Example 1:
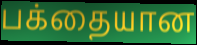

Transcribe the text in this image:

பக்தையான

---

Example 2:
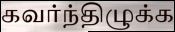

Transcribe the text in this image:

கவர்ந்திழுக்க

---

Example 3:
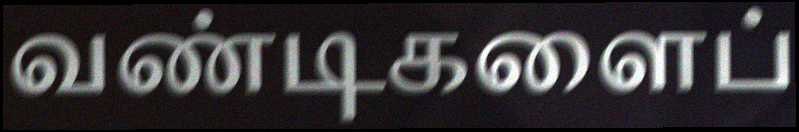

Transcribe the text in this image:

வண்டிகளைப்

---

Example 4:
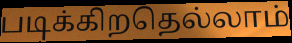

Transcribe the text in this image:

படிக்கிறதெல்லாம்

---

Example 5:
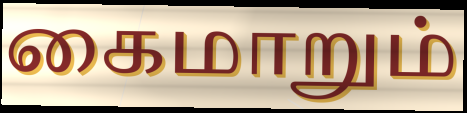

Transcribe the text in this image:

கைமாறும்